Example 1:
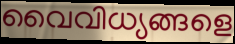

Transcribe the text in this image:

വൈവിധ്യങ്ങളെ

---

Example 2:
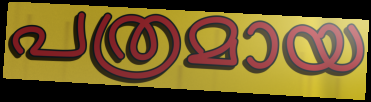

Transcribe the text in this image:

പത്രമായ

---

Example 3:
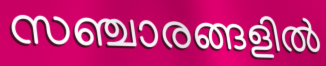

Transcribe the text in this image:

സഞ്ചാരങ്ങളിൽ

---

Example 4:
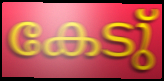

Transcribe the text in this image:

കേടു്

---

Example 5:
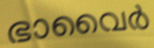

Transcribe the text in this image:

ഭാവൈർ